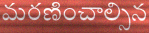
మరణించాల్సిన